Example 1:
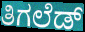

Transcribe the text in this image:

ತಿಗಲೆಡ್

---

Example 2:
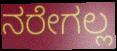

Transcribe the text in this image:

ನರೇಗಲ್ಲ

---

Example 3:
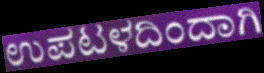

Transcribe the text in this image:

ಉಪಟಳದಿಂದಾಗಿ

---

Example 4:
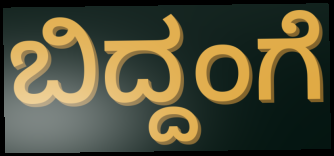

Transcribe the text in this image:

ಬಿದ್ದಂಗೆ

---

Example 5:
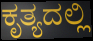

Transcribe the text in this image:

ಕೃತ್ಯದಲ್ಲಿ